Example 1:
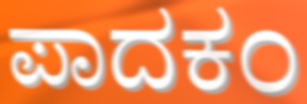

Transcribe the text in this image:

ಪಾದಕಂ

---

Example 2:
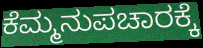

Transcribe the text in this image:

ಕೆಮ್ಮನುಪಚಾರಕ್ಕೆ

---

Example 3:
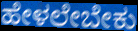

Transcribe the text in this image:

ಹೇಳಲೇಬೇಕು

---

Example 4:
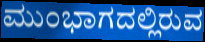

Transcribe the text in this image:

ಮುಂಭಾಗದಲ್ಲಿರುವ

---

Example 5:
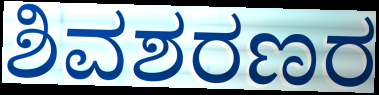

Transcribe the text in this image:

ಶಿವಶರಣರ